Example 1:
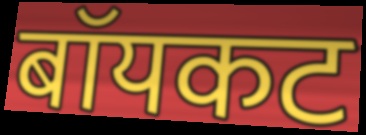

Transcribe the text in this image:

बॉयकट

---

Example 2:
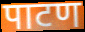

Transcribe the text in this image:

पाटण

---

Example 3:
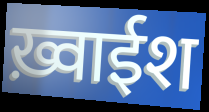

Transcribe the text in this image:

ख़्वाईश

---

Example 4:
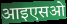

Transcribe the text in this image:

आइएसओ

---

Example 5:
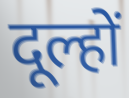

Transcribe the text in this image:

दूल्हों